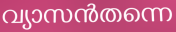
വ്യാസൻതന്നെ